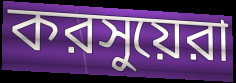
করসুয়েরা